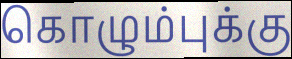
கொழும்புக்கு